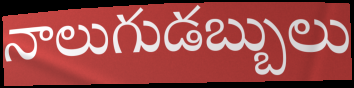
నాలుగుడబ్బులు